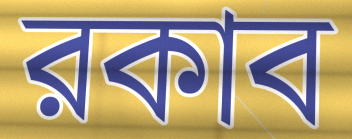
রকাব